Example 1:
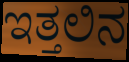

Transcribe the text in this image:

ಇತ್ತಲಿನ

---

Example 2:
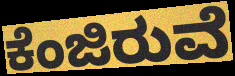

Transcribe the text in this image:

ಕೆಂಜಿರುವೆ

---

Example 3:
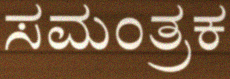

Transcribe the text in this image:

ಸಮಂತ್ರಕ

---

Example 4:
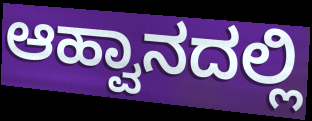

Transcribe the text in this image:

ಆಹ್ವಾನದಲ್ಲಿ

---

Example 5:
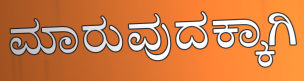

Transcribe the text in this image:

ಮಾರುವುದಕ್ಕಾಗಿ